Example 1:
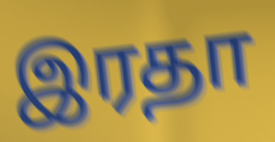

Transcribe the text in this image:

இரதா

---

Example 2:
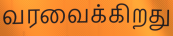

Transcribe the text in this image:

வரவைக்கிறது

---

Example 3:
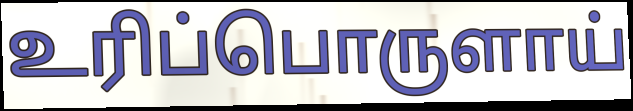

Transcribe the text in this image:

உரிப்பொருளாய்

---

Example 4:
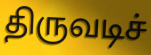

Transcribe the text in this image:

திருவடிச்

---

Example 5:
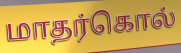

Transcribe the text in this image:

மாதர்கொல்